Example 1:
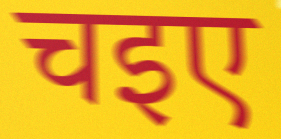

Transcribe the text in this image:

चइए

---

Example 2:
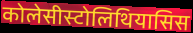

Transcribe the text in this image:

कोलेसीस्टोलिथियासिस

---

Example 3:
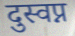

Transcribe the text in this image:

दुस्वप्न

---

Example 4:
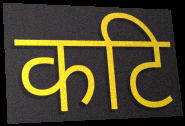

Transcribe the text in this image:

कटि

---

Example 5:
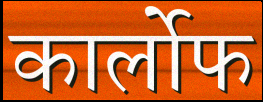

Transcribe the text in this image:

कार्लोफ